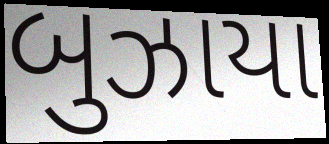
બુઝાયા